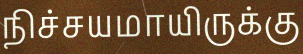
நிச்சயமாயிருக்கு